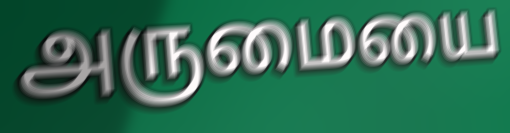
அருமையை